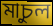
মাচুল